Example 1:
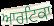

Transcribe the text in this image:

ਆਰਟਿਕਾ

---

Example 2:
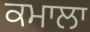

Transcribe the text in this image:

ਕਮਾਲਾ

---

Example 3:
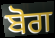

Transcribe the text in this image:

ਬੋਗ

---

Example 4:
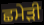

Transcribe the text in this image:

ਛਮੇੜੀ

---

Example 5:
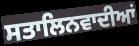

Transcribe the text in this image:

ਸਤਾਲਿਨਵਾਦੀਆਂ